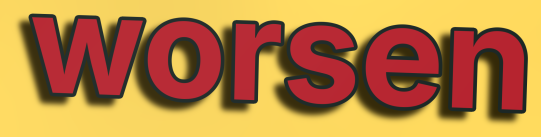
worsen